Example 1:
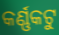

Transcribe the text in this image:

କର୍ଣ୍ଣକଟୁ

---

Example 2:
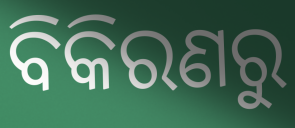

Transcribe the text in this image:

ବିକିରଣରୁ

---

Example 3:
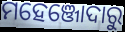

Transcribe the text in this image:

ମହେଞ୍ଜୋଦାରୁ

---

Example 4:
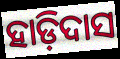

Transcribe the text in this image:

ହାଡ଼ିଦାସ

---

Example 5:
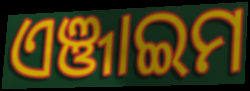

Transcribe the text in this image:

ଏଞ୍ଜାଇମ